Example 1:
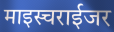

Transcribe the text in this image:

माइस्चराईजर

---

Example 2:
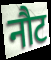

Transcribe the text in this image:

नौट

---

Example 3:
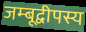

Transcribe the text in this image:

जम्बूद्वीपस्य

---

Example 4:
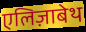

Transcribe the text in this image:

एलिज़ाबेथ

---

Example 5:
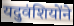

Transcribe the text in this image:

यदुवंशियोंने